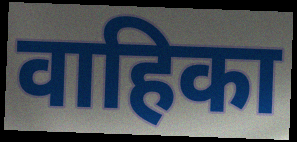
वाहिका